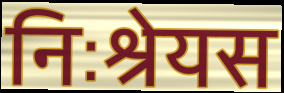
निःश्रेयस